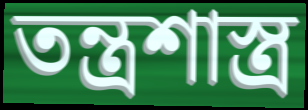
তন্ত্রশাস্ত্র